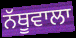
ਨੱਥੂਵਾਲਾ